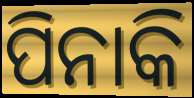
ପିନାକି